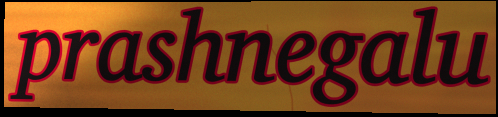
prashnegalu